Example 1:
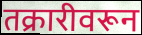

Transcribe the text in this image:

तक्रारीवरून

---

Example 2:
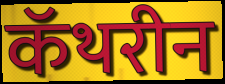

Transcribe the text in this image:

कॅथरीन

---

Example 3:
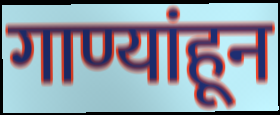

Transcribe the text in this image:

गाण्यांहून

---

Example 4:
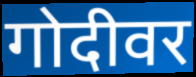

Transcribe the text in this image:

गोदीवर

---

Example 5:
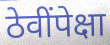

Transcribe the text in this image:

ठेवींपेक्षा